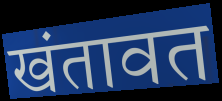
खंतावत